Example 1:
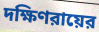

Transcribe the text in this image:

দক্ষিণরায়ের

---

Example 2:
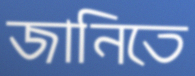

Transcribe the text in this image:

জানিতে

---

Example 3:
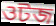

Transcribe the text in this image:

ওটজ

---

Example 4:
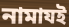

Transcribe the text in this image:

নামাযই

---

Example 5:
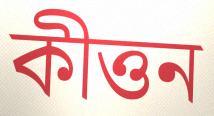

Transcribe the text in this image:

কীত্তন